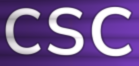
csc